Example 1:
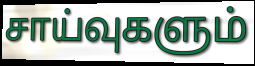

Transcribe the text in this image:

சாய்வுகளும்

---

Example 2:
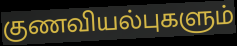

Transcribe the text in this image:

குணவியல்புகளும்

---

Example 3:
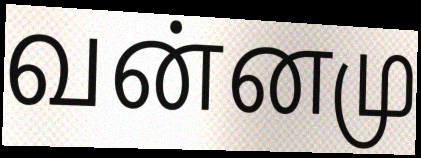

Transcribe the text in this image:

வன்னமு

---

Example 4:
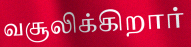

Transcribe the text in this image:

வசூலிக்கிறார்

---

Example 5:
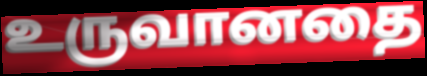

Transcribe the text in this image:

உருவானதை